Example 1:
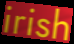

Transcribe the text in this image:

irish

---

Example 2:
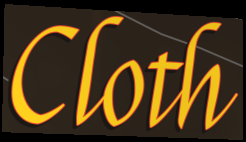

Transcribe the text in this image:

Cloth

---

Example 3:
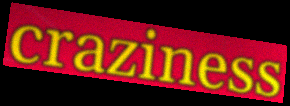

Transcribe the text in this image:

craziness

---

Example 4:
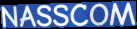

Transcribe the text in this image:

NASSCOM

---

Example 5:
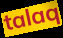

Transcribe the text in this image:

talaq